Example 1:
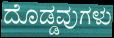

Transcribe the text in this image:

ದೊಡ್ಡವುಗಳು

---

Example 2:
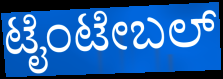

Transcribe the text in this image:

ಟೈಂಟೇಬಲ್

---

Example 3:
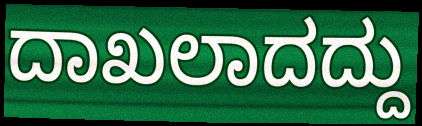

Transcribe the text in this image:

ದಾಖಲಾದದ್ದು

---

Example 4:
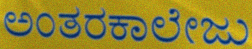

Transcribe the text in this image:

ಅಂತರಕಾಲೇಜು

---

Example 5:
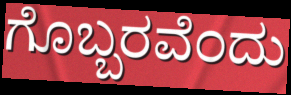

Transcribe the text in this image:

ಗೊಬ್ಬರವೆಂದು